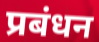
प्रबंधन